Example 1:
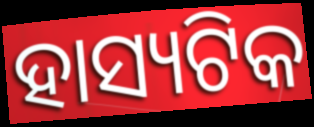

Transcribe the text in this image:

ହାସ୍ୟଟିକ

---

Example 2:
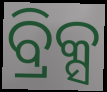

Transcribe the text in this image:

ବ୍ରିକ୍ସ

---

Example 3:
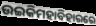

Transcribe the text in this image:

ଉଇକିମହାବିହାରରେ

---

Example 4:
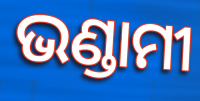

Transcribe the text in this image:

ଭଣ୍ଡାମୀ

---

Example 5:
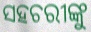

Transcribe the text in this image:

ସହଚରୀଙ୍କୁ